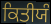
ਕਿਤੀਯੰ